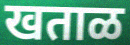
खताळ